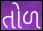
તોળ